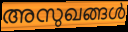
അസുഖങ്ങൾ